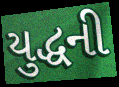
યુદ્ધની